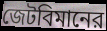
জেটবিমানের